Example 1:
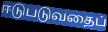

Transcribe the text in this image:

ஈடுபடுவதைப்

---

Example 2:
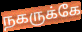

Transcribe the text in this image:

நகருக்கே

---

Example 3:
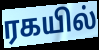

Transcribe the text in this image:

ரகயில்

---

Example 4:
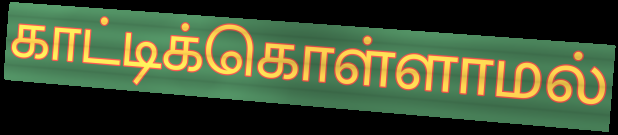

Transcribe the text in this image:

காட்டிக்கொள்ளாமல்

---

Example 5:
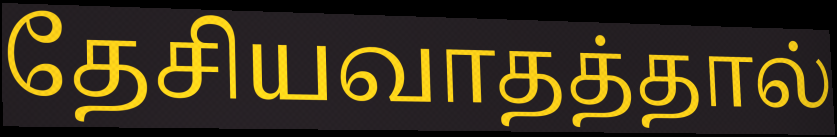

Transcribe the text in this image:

தேசியவாதத்தால்